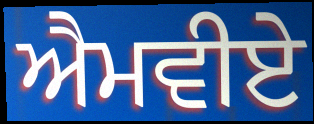
ਐਮਵੀਏ